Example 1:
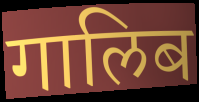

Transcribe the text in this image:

गालिब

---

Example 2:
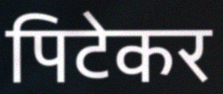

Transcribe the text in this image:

पिटेकर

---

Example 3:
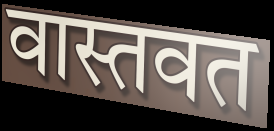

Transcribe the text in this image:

वास्‍तवत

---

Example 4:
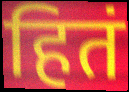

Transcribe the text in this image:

हितं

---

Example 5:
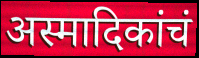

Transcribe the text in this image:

अस्मादिकांचं